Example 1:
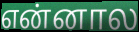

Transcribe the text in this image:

என்னால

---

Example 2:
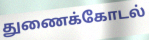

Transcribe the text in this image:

துணைக்கோடல்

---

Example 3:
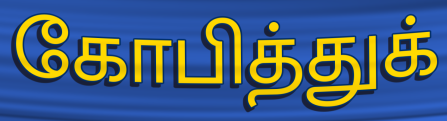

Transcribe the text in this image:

கோபித்துக்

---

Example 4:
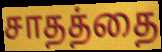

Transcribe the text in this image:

சாதத்தை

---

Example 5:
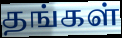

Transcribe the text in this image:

தங்கள்